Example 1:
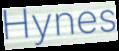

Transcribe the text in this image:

Hynes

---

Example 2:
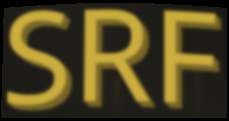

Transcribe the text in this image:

SRF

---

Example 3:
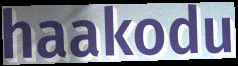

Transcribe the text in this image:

haakodu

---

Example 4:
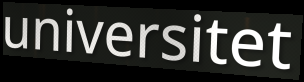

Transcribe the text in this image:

universitet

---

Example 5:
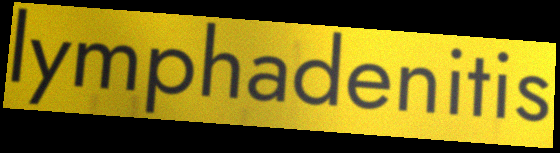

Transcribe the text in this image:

lymphadenitis